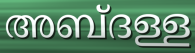
അബ്ദള്ള